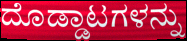
ದೊಡ್ಡಾಟಗಳನ್ನು